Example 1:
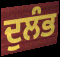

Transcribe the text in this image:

ਦੁਲੰਭ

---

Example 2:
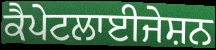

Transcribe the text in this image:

ਕੈਪੇਟਲਾਈਜੇਸ਼ਨ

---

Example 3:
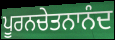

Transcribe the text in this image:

ਪੂਰਨਚੇਤਨਾਨੰਦ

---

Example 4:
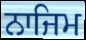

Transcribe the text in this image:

ਨਾਜਿਮ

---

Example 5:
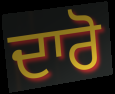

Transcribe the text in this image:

ਦਾਰੋ